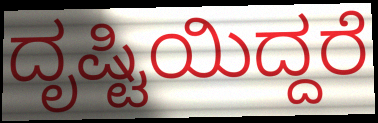
ದೃಷ್ಟಿಯಿದ್ದರೆ